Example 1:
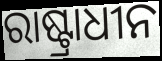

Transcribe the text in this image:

ରାଷ୍ଟ୍ରାଧୀନ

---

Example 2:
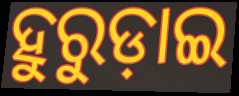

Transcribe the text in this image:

ହୁରୁଡ଼ାଇ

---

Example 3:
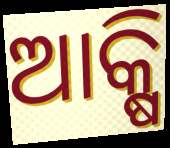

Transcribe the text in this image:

ଆକ୍ଷି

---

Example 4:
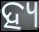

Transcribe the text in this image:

ହ୍ୟ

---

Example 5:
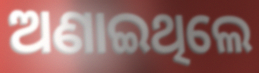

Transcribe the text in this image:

ଅଣାଇଥିଲେ